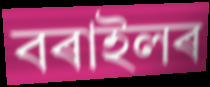
বৰাইলৰ